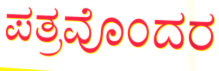
ಪತ್ರವೊಂದರ